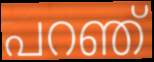
പറഞ്